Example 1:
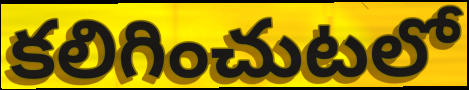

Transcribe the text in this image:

కలిగించుటలో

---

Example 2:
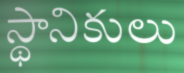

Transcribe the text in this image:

స్థానికులు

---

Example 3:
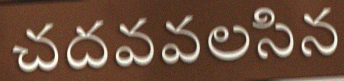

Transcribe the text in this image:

చదవవలసిన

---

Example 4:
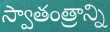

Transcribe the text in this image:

స్వాతంత్రాన్ని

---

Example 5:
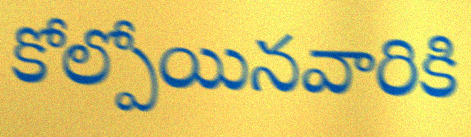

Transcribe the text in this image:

కోల్పోయినవారికి